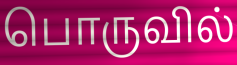
பொருவில்